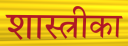
शास्त्रीका